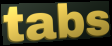
tabs